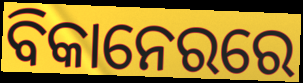
ବିକାନେରରେ